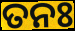
ତନଃ